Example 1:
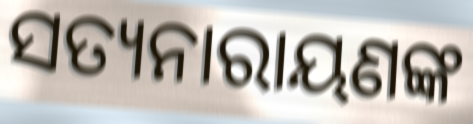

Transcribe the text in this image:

ସତ୍ୟନାରାୟଣଙ୍କ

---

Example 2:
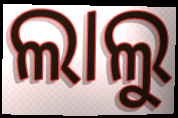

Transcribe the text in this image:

ଲାଲୁ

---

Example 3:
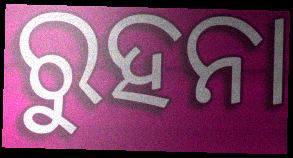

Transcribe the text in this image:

ରୁହନା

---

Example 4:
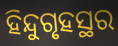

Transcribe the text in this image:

ହିନ୍ଦୁଗୃହସ୍ଥର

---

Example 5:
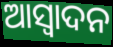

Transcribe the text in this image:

ଆସ୍ୱାଦନ